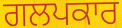
ਗਲਪਕਾਰ